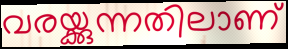
വരയ്ക്കുന്നതിലാണ്